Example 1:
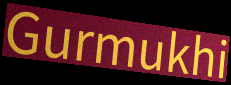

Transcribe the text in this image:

Gurmukhi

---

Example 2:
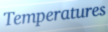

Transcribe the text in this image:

Temperatures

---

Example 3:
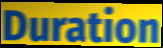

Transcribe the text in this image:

Duration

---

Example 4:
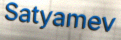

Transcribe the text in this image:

Satyamev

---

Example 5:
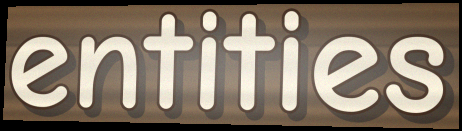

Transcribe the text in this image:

entities